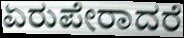
ಏರುಪೇರಾದರೆ